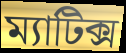
ম্যাটিক্স